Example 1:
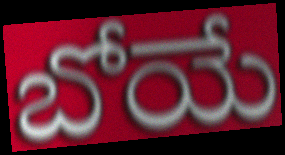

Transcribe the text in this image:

బోయే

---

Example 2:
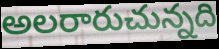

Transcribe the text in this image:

అలరారుచున్నది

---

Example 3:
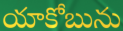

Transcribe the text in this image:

యాకోబును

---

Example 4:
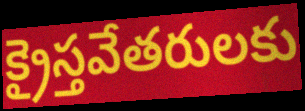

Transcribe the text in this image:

క్రైస్తవేతరులకు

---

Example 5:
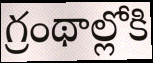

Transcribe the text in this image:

గ్రంథాల్లోకి